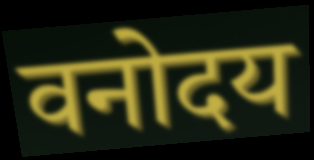
वनोदय